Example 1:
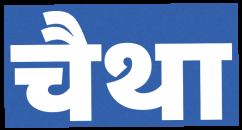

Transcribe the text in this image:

चैथा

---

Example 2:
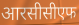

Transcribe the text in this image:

आरसीसीएफ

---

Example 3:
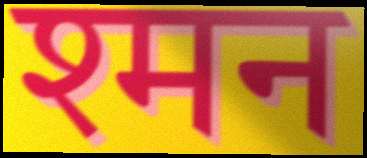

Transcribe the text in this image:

श्मन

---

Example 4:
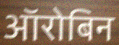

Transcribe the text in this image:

ऑरोबिन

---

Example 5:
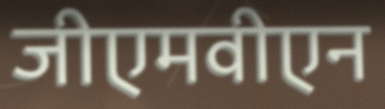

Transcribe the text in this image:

जीएमवीएन